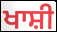
ਖਾਸ਼ੀ